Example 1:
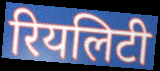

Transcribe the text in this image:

रियलिटी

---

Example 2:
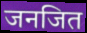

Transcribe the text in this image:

जनजित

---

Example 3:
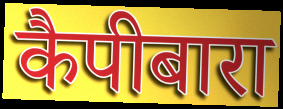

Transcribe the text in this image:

कैपीबारा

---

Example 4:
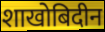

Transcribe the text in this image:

शाखोबिदीन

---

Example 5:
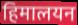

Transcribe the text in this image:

हिमालयन